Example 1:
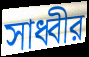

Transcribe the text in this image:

সাধ্বীর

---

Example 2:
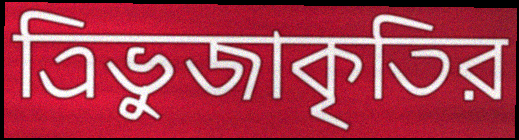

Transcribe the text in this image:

ত্রিভুজাকৃতির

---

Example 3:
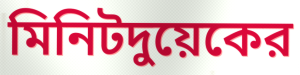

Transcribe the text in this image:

মিনিটদুয়েকের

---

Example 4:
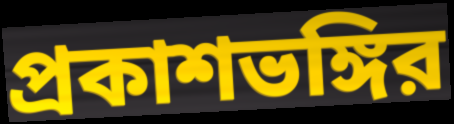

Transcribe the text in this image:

প্রকাশভঙ্গির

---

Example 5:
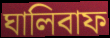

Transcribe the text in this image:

ঘালিবাফ